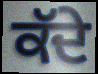
ਕੱਦੇ